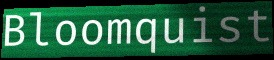
Bloomquist